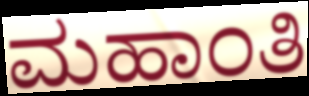
ಮಹಾಂತಿ